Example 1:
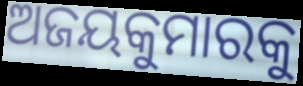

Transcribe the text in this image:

ଅଜୟକୁମାରକୁ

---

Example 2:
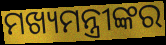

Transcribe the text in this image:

ମଖ୍ୟମନ୍ତ୍ରୀଙ୍କର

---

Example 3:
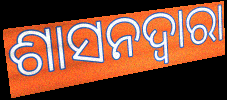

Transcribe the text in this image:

ଶାସନଦ୍ୱାରା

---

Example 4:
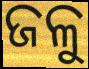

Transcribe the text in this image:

ଜଳୁ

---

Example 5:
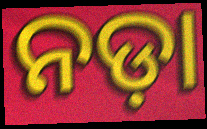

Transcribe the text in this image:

ନଡ଼ା